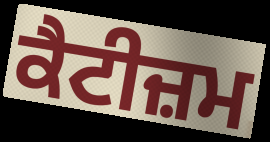
ਕੈਟੀਜ਼ਮ